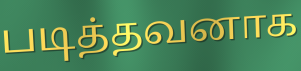
படித்தவனாக